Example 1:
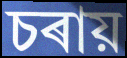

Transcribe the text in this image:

চৰায়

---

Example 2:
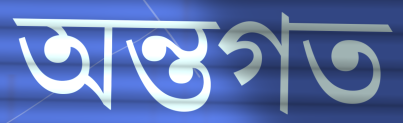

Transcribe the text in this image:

অন্তগত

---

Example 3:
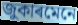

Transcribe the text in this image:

জুকাৰমেনে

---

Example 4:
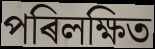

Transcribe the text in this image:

পৰিলক্ষিত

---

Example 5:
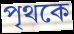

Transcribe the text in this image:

পৃথকে